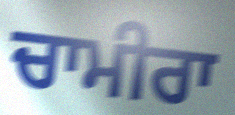
ਚਾਮੀਰਾ